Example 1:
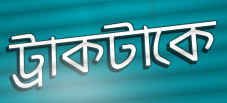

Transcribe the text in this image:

ট্রাকটাকে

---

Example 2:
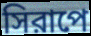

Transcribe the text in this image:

সিরাপে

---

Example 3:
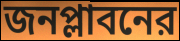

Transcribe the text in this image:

জনপ্লাবনের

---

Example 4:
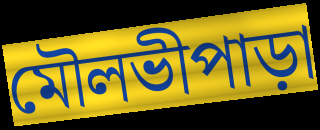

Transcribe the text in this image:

মৌলভীপাড়া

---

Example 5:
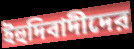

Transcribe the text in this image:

ইহুদিবাদীদের